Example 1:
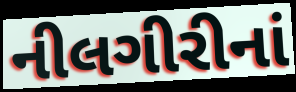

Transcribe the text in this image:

નીલગીરીનાં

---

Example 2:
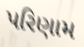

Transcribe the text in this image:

પરિણામ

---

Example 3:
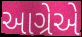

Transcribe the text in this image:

આગ્રેએ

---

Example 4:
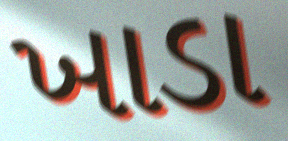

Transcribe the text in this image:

ખાડા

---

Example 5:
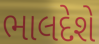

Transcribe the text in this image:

ભાલદેશે